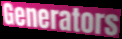
Generators